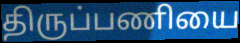
திருப்பணியை